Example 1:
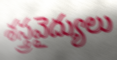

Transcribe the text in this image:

శస్త్రవైద్యులు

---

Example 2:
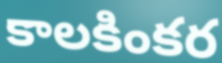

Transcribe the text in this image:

కాలకింకర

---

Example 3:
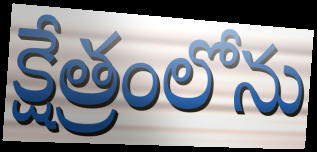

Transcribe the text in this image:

క్షేత్రంలోను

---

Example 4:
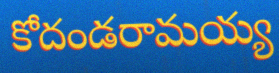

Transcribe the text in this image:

కోదండరామయ్య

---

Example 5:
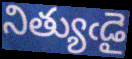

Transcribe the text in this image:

నిత్యుఁడై